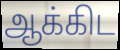
ஆக்கிட